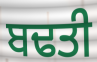
ਬਢਤੀ